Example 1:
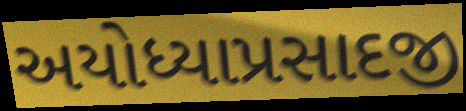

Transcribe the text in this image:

અયોધ્યાપ્રસાદજી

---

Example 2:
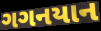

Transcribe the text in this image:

ગગનયાન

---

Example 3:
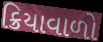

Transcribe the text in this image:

ક્રિયાવાળો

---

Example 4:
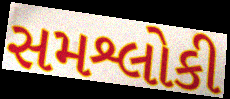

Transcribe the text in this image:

સમશ્લોકી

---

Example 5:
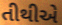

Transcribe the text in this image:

તીથીએ